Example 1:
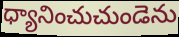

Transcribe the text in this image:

ధ్యానించుచుండెను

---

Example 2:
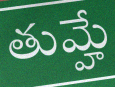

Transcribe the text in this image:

తుమ్హే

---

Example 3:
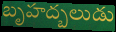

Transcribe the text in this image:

బృహద్బలుడు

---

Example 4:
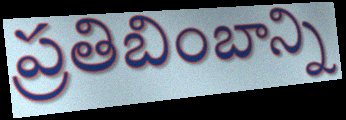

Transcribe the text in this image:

ప్రతిబింబాన్ని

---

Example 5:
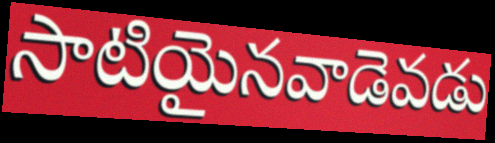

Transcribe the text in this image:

సాటియైనవాడెవడు